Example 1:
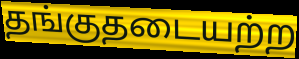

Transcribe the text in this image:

தங்குதடையற்ற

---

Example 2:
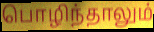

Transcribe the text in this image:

பொழிந்தாலும்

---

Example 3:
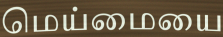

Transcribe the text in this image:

மெய்மையை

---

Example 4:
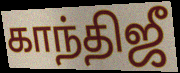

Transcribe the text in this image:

காந்திஜீ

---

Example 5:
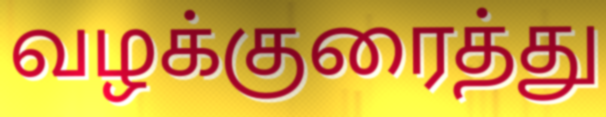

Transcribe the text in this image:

வழக்குரைத்து